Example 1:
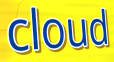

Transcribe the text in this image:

cloud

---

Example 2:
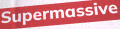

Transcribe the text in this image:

Supermassive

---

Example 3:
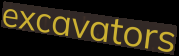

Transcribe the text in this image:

excavators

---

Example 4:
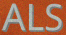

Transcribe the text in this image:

ALS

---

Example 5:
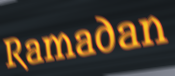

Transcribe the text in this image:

Ramadan